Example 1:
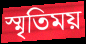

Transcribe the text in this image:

স্মৃতিময়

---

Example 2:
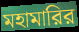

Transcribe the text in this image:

মহামারির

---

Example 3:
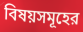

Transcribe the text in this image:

বিষয়সমূহের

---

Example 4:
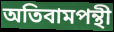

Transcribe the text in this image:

অতিবামপন্থী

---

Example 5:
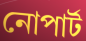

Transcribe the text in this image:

নোপার্ট